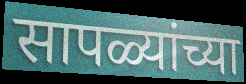
सापळ्यांच्या